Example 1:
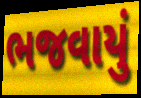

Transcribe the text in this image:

ભજવાયું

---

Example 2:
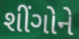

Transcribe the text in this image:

શીંગોને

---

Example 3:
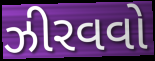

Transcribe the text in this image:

ઝીરવવો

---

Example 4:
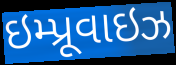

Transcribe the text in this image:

ઇમ્પ્રૂવાઇઝ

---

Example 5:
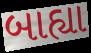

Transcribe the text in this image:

બાહ્યા